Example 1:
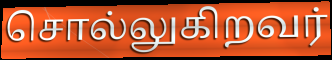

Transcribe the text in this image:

சொல்லுகிறவர்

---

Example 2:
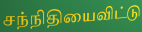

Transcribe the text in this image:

சந்நிதியைவிட்டு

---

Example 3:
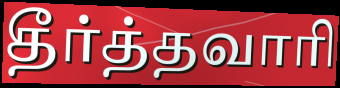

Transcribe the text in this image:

தீர்த்தவாரி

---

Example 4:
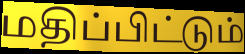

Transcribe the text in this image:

மதிப்பிட்டும்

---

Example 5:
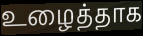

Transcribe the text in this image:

உழைத்தாக